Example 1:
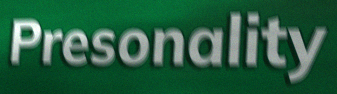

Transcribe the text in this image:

Presonality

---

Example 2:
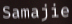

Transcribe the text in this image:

Samajie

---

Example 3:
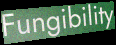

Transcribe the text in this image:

Fungibility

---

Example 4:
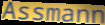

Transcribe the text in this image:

Assmann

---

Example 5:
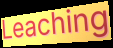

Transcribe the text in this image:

Leaching